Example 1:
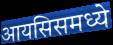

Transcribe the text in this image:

आयसिसमध्ये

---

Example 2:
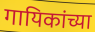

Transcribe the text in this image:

गायिकांच्या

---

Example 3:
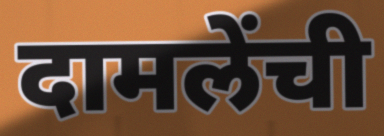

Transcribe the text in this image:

दामलेंची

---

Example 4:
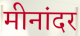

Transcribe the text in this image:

मीनांदर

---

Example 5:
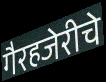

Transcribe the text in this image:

गैरहजेरीचे